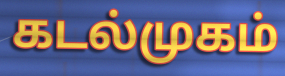
கடல்முகம்